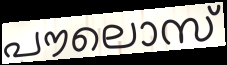
പൗലൊസ്